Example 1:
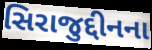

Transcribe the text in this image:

સિરાજુદ્દીનના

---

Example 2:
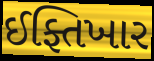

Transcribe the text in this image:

ઈફ્તિખાર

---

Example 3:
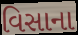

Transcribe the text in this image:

વિસાના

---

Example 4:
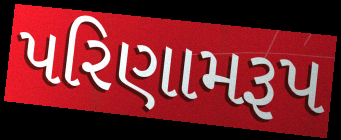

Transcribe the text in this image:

પરિણામરૂપ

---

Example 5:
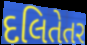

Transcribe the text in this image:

દલિતેતર